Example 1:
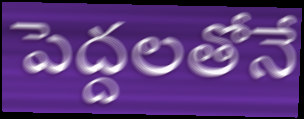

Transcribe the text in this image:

పెద్దలతోనే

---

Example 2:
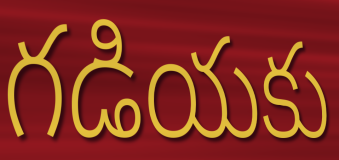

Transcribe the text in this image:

గడియకు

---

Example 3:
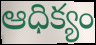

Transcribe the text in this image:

ఆధిక్యం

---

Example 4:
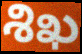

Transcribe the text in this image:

శిఖ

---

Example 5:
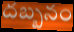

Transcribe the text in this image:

దబ్బనం